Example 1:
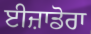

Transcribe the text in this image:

ਈਜ਼ਾਡੋਰਾ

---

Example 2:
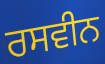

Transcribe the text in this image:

ਰਸਵੀਨ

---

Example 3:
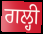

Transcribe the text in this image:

ਗਲ੍ਹੀ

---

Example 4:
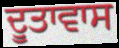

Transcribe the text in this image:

ਦੂਤਾਵਾਸ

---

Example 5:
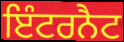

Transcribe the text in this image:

ਇੰਟਰਨੈਟ